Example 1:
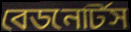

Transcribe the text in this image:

বেডনোর্টস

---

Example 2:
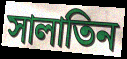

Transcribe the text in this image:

সালাতিন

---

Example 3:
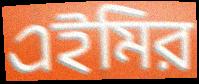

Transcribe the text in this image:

এইমির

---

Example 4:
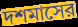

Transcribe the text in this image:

দশমাসের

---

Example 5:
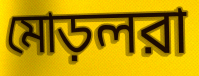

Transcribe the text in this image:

মোড়লরা